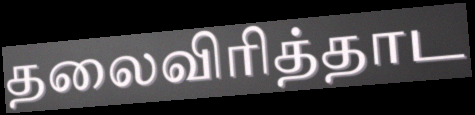
தலைவிரித்தாட